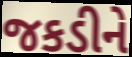
જકડીને